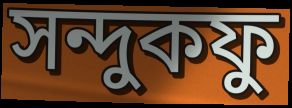
সন্দুকফু